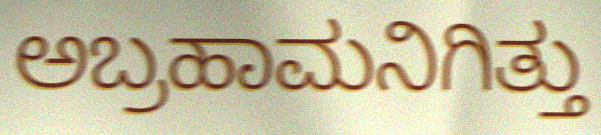
ಅಬ್ರಹಾಮನಿಗಿತ್ತು